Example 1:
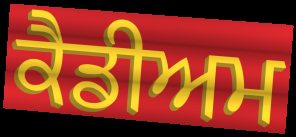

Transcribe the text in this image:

ਕੈਡੀਅਮ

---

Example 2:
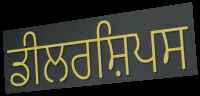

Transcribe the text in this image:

ਡੀਲਰਸ਼ਿਪਸ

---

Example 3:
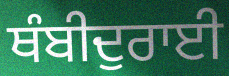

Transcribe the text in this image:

ਥੰਬੀਦੁਰਾਈ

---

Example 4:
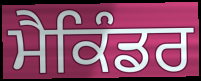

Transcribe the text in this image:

ਮੈਕਿੰਡਰ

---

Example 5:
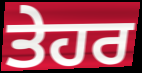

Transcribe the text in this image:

ਤੇਹਰ